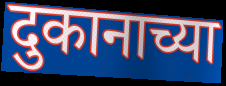
दुकानाच्या